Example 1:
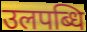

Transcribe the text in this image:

उलपब्धि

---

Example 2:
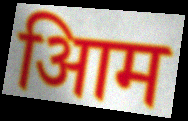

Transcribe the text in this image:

आिम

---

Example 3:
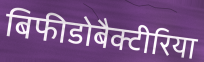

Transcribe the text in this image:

बिफीडोबैक्टीरिया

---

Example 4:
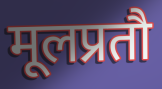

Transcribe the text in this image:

मूलप्रतौ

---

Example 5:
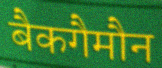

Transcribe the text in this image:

बैकगैमौन